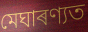
মেঘাৰণ্যত